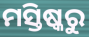
ମସ୍ତିଷ୍କରୁ